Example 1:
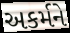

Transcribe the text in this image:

અકર્મને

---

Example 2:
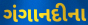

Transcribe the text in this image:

ગંગાનદીના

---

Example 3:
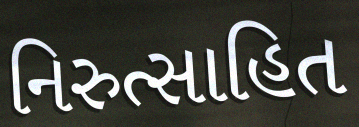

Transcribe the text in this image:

નિરુત્સાહિત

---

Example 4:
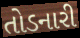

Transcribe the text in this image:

તોડનારી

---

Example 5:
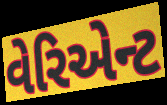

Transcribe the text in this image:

વેરિએન્ટ